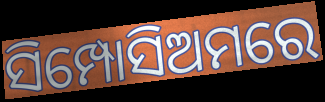
ସିମ୍ପୋସିଅମରେ